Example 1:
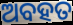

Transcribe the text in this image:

ଅବହତ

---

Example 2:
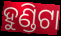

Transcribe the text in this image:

ହୁଣ୍ଡିଟା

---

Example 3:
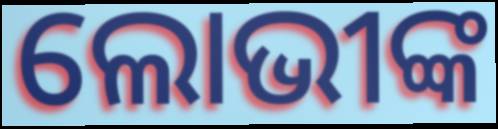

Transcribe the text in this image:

ଲୋଭୀଙ୍କ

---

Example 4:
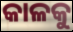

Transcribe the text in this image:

କାଳକୁ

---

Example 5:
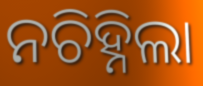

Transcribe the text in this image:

ନଚିହ୍ନିଲା